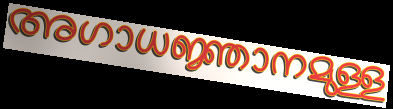
അഗാധജ്ഞാനമുള്ള